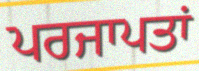
ਪਰਜਾਪਤਾਂ